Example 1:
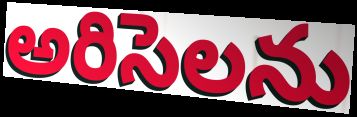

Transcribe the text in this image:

అరిసెలను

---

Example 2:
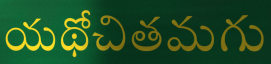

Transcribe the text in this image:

యథోచితమగు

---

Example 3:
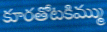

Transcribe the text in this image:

కూరతోటకిమ్ము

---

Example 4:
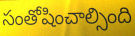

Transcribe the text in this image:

సంతోషించాల్సింది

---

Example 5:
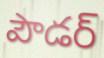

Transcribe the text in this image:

పౌడర్